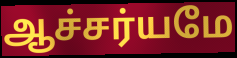
ஆச்சர்யமே